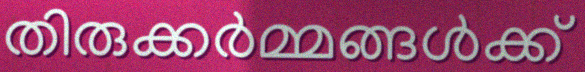
തിരുക്കർമ്മങ്ങൾക്ക്